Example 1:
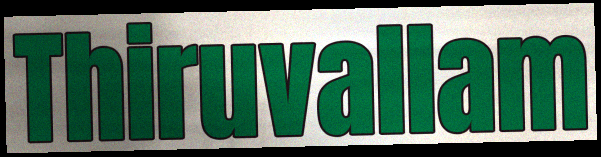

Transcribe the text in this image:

Thiruvallam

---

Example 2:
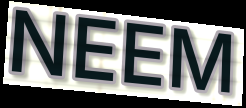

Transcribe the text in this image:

NEEM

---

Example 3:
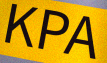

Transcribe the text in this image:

KPA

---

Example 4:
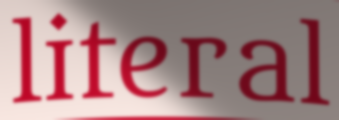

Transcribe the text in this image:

literal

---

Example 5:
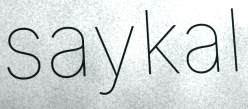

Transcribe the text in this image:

saykal